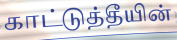
காட்டுத்தீயின்